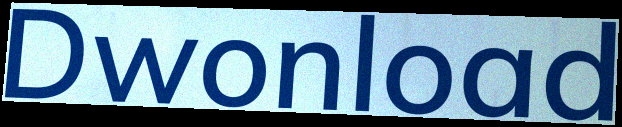
Dwonload